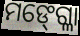
ମଙ୍ଗ୍ଳୋ